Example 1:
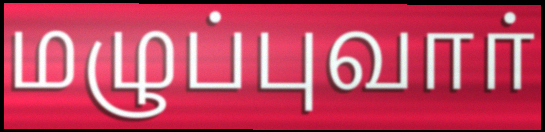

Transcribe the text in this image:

மழுப்புவார்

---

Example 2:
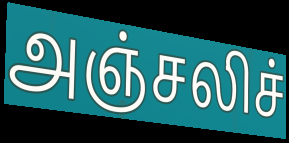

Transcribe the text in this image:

அஞ்சலிச்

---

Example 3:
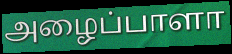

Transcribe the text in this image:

அழைப்பாளா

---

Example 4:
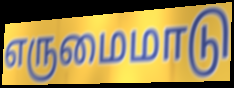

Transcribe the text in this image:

எருமைமாடு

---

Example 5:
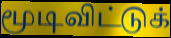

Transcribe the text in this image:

மூடிவிட்டுக்